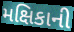
મક્ષિકાની